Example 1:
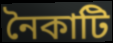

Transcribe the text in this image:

নৈকাটি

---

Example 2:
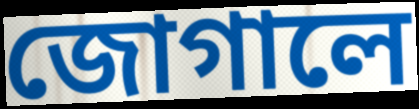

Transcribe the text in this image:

জোগালে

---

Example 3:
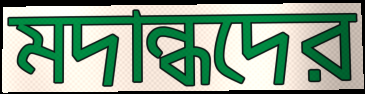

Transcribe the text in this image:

মদান্ধদের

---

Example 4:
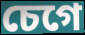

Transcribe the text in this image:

চেগে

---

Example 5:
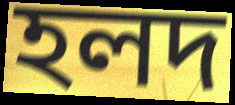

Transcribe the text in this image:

হলদ